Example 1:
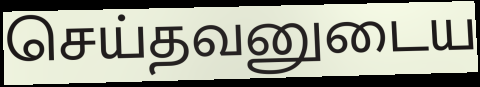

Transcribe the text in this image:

செய்தவனுடைய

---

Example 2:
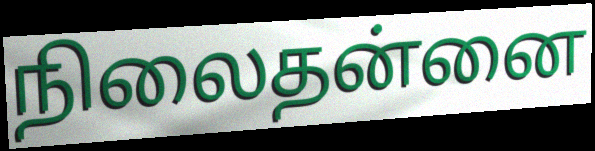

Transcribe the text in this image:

நிலைதன்னை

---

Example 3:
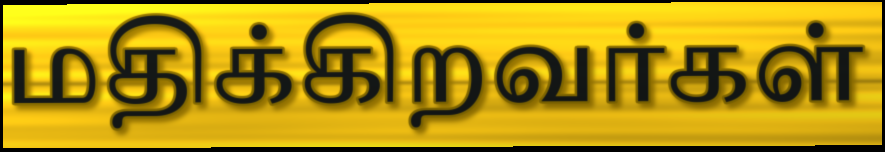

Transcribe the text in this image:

மதிக்கிறவர்கள்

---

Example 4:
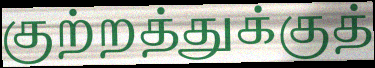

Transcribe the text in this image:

குற்றத்துக்குத்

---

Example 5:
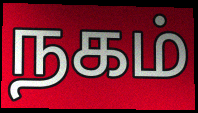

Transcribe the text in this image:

நகம்